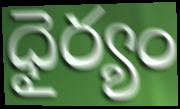
ధైర్యం